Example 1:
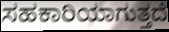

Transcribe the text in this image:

ಸಹಕಾರಿಯಾಗುತ್ತದೆ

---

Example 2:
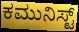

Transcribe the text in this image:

ಕಮುನಿಸ್ಟ್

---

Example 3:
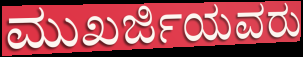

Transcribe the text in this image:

ಮುಖರ್ಜಿಯವರು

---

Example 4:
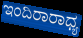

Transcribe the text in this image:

ಇಂದಿರಾರಾಧ್ಯ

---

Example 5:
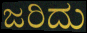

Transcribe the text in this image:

ಜರಿದು